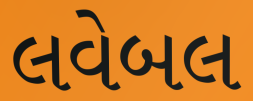
લવેબલ